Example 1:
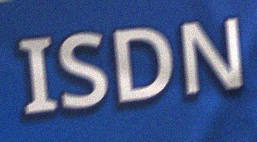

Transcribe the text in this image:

ISDN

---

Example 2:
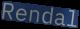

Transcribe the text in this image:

Rendal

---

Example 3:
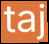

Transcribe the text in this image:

taj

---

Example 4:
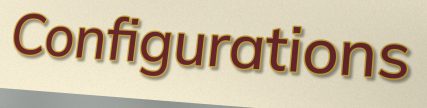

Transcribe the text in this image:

Configurations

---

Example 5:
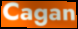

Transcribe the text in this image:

Cagan